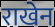
राखेन